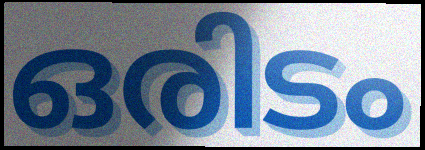
ഒരിടം